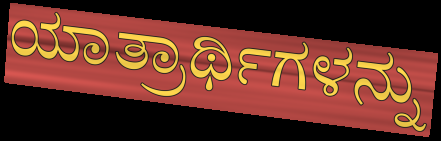
ಯಾತ್ರಾರ್ಥಿಗಳನ್ನು